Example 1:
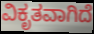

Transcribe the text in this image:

ವಿಕೃತವಾಗಿದೆ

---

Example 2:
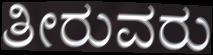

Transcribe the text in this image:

ತೀರುವರು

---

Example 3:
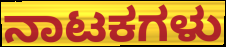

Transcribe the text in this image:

ನಾಟಕಗಳು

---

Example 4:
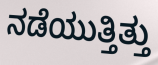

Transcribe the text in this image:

ನಡೆಯುತ್ತಿತ್ತು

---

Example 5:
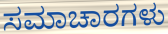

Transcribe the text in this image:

ಸಮಾಚಾರಗಳು